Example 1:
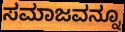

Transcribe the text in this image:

ಸಮಾಜವನ್ನೂ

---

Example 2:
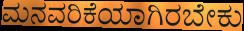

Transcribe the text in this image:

ಮನವರಿಕೆಯಾಗಿರಬೇಕು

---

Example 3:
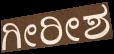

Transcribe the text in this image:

ಗೀರೀಶ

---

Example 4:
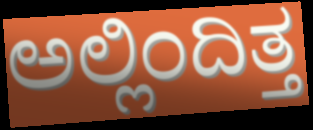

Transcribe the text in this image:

ಅಲ್ಲಿಂದಿತ್ತ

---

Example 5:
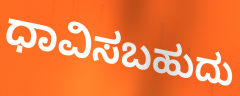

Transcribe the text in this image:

ಧಾವಿಸಬಹುದು